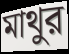
মাথুর